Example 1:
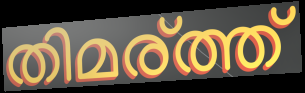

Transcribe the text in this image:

തിമര്ത്ത്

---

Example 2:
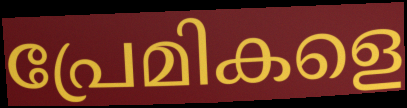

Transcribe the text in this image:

പ്രേമികളെ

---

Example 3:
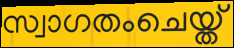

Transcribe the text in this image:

സ്വാഗതംചെയ്ത്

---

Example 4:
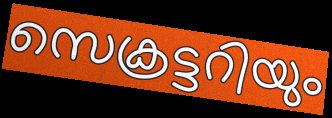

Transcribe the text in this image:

സെക്രട്ടറിയും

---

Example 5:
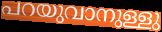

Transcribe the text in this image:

പറയുവാനുള്ളു